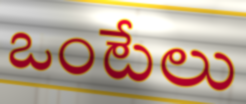
ఒంటేలు